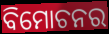
ବିମୋଚନର